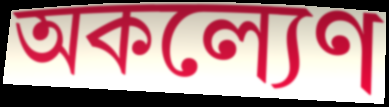
অকল্যেণ